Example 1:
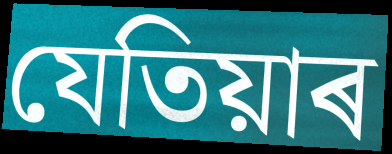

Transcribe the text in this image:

যেতিয়াৰ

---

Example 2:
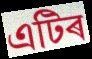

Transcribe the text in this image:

এটিৰ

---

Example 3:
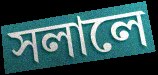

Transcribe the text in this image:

সলালে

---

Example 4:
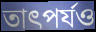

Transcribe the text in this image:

তাৎপৰ্যও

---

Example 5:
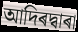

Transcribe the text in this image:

আদিৰদ্বাৰা